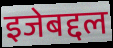
इजेबद्दल